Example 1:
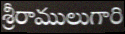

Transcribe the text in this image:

శ్రీరాములుగారి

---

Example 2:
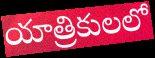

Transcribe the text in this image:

యాత్రికులలో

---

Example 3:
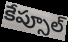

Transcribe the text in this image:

కేప్సూల్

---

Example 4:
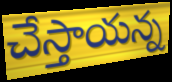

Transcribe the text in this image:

చేస్తాయన్న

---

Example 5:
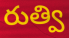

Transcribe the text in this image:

రుత్వి